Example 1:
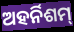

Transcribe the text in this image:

ଅହର୍ନିଶମ୍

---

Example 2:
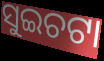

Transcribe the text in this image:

ସୁଇଚଟା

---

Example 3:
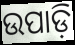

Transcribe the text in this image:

ଉପାଡ଼ି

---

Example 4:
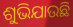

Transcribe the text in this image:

ଶୁଭିଯାଉଛି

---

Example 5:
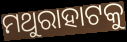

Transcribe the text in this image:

ମଥୁରାହାଟକୁ